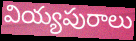
వియ్యపురాలు